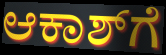
ಆಕಾಶ್‌ಗೆ